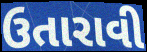
ઉતારાવી